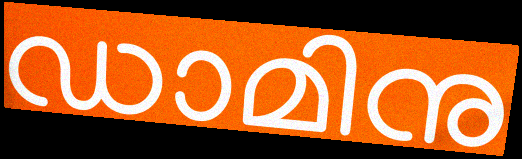
ഡാമിനു